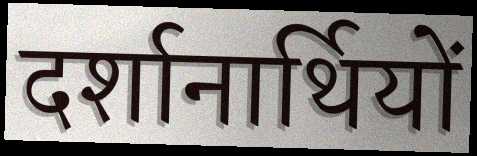
दर्शानार्थियों